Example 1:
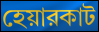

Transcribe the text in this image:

হেয়ারকাট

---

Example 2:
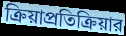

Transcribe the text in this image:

ক্রিয়াপ্রতিক্রিয়ার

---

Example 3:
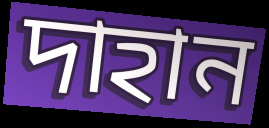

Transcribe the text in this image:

দাহান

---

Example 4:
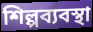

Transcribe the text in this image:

শিল্পব্যবস্থা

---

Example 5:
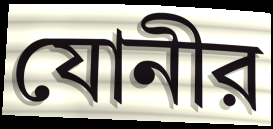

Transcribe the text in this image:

যোনীর